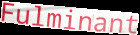
Fulminant